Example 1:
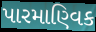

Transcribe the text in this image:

પારમાણ્વિક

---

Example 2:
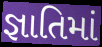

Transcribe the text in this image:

જ્ઞાતિમાં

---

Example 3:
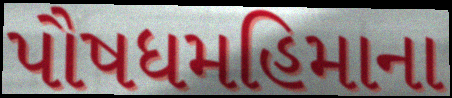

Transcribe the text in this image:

પૌષધમહિમાના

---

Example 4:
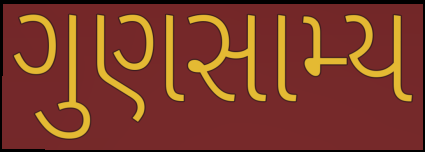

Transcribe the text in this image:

ગુણસામ્ય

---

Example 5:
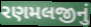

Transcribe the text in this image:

રણમલજીનું